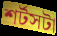
শর্টসটা